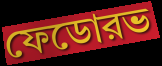
ফেডোরভ